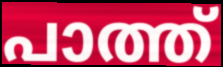
പാത്ത്